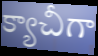
క్యాచీగా